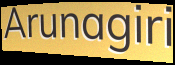
Arunagiri